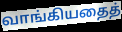
வாங்கியதைத்